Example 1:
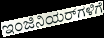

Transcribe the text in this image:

ಇಂಜಿನಿಯರ್‌ಗಳಿಗೆ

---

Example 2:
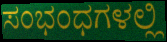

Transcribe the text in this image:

ಸಂಭಂಧಗಳಲ್ಲಿ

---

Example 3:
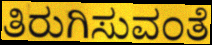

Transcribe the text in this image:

ತಿರುಗಿಸುವಂತೆ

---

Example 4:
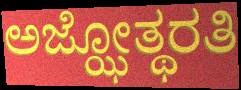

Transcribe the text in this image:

ಅಜ್ಝೋತ್ಥರತಿ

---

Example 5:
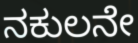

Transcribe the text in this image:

ನಕುಲನೇ